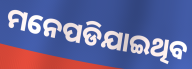
ମନେପଡିଯାଇଥିବ